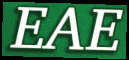
EAE